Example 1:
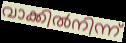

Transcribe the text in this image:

വാക്കിൽനിന്ന്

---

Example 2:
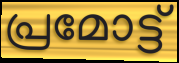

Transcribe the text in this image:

പ്രമോട്ട്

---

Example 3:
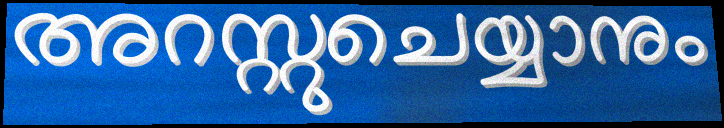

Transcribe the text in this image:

അറസ്റ്റുചെയ്യാനും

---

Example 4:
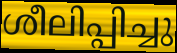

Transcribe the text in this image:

ശീലിപ്പിച്ചു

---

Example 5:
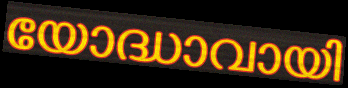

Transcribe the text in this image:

യോദ്ധാവായി